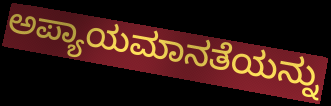
ಅಪ್ಯಾಯಮಾನತೆಯನ್ನು